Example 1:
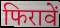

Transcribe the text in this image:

फिरावें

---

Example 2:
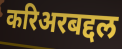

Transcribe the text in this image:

करिअरबद्दल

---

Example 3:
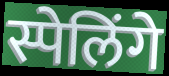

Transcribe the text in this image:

स्पेलिंगे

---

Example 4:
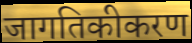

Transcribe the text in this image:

जागतिकीकरण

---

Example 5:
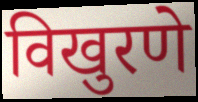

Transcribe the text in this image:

विखुरणे